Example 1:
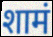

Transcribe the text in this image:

शामं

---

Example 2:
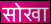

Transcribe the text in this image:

सोखा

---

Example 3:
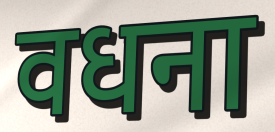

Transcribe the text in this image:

वधना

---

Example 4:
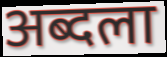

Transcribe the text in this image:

अब्दला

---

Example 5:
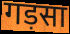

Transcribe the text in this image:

गड़सा